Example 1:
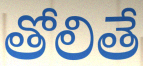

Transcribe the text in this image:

తోలితే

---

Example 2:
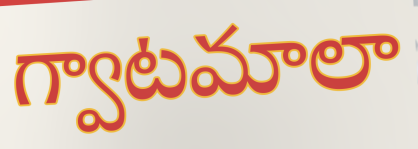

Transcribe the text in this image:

గ్వాటమాలా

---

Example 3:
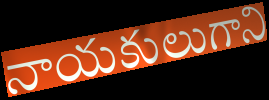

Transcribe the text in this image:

నాయకులుగాని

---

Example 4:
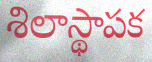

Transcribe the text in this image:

శిలాస్థాపక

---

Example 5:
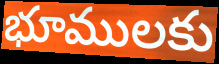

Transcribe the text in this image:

భూములకు